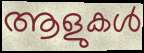
ആളുകൾ